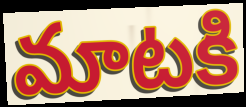
మాటకి